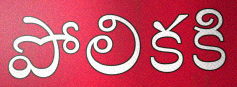
పోలికకి